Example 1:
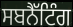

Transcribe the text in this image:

ਸਬਨੈੱਟਿੰਗ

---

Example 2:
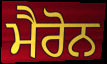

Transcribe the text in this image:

ਮੈਰੋਨ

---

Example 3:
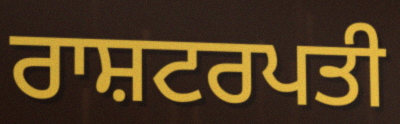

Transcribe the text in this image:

ਰਾਸ਼ਟਰਪਤੀ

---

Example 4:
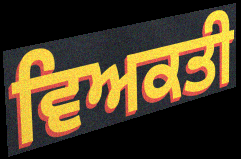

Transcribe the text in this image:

ਵਿਅਕਤੀ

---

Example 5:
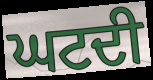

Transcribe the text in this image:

ਘਟਦੀ